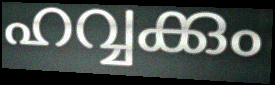
ഹവ്വക്കും